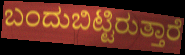
ಬಂದುಬಿಟ್ಟಿರುತ್ತಾರೆ